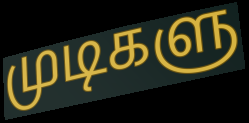
முடிகளு